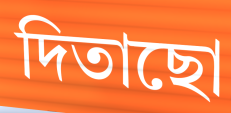
দিতাছো